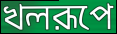
খলরূপে